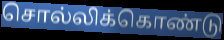
சொல்லிக்கொண்டு